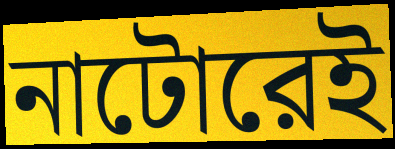
নাটোরেই